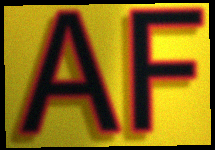
AF